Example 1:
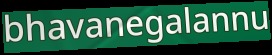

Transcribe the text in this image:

bhavanegalannu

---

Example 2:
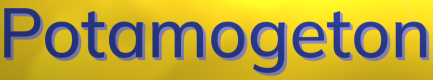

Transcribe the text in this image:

Potamogeton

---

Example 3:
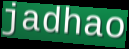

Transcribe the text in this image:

jadhao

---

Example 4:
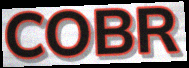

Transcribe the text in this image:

COBR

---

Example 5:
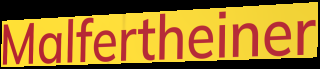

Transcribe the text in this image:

Malfertheiner